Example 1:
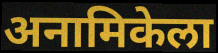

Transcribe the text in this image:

अनामिकेला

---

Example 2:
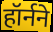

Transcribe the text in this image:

हॉर्नने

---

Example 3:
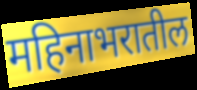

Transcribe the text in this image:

महिनाभरातील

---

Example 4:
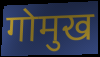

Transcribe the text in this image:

गोमुख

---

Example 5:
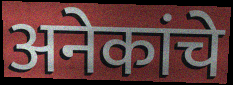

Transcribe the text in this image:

अनेकांचे